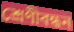
শ্রেণীবন্ধন